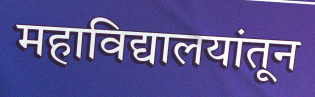
महाविद्यालयांतून